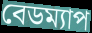
বেডম্যাপ